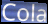
Cola